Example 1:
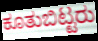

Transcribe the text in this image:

ಕೂತುಬಿಟ್ಟರು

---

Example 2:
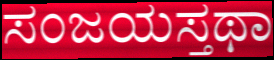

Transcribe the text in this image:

ಸಂಜಯಸ್ತಥಾ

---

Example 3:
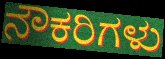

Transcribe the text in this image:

ನೌಕರಿಗಳು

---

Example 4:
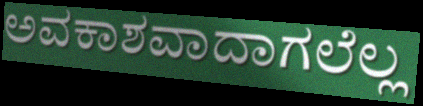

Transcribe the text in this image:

ಅವಕಾಶವಾದಾಗಲೆಲ್ಲ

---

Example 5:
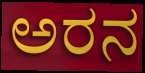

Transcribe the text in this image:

ಅರನ